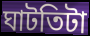
ঘাটতিটা